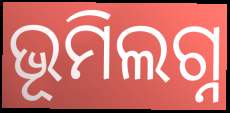
ଭୂମିଲଗ୍ନ